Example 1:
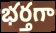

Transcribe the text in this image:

భర్తగా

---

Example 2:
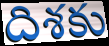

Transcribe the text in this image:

దిశకు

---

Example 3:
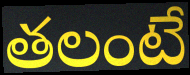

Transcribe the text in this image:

తలంటే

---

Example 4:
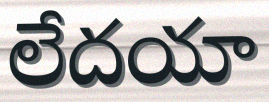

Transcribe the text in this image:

లేదయా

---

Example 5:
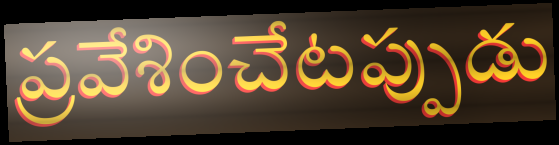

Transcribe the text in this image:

ప్రవేశించేటప్పుడు